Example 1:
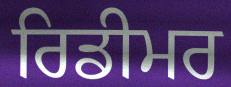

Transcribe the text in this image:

ਰਿਡੀਮਰ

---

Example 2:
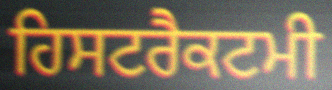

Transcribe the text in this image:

ਹਿਸਟਰੈਕਟਮੀ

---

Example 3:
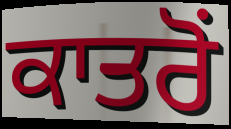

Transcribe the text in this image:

ਕਾਤਰੋੰ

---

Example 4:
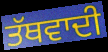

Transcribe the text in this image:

ਤੱਥਵਾਦੀ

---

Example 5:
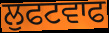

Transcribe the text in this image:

ਲੁਫਟਵਾਫ